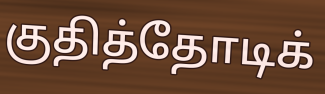
குதித்தோடிக்